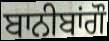
ਬਾਨੀਬਾਂਗੌ